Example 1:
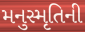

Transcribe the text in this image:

મનુસ્મૃતિની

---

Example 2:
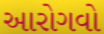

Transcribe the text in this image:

આરોગવો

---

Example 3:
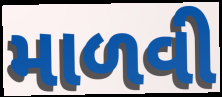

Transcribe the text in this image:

માળવી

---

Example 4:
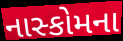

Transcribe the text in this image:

નાસ્કોમના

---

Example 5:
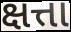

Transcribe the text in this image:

ક્ષત્તા